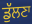
ਡੁੱਲਣਾ